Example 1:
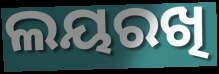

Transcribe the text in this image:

ଲୟରଖି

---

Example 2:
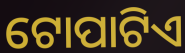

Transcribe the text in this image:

ଟୋପାଟିଏ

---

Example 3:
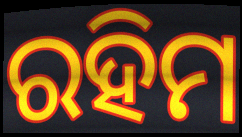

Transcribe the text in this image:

ରହିମ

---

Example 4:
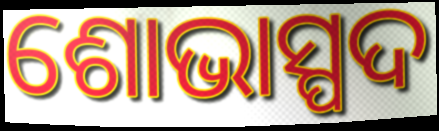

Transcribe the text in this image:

ଶୋଭାସ୍ପଦ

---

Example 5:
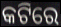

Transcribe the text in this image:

କଟିରେ